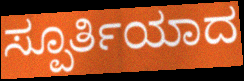
ಸ್ಪೂರ್ತಿಯಾದ